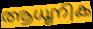
ആധൂനിക